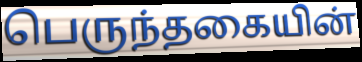
பெருந்தகையின்